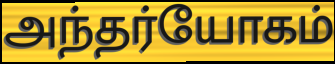
அந்தர்யோகம்